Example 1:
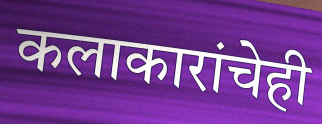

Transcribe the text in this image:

कलाकारांचेही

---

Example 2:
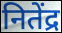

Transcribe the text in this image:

नितेंद्र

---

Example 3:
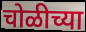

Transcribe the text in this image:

चोळीच्या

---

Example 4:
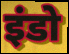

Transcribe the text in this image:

इंडो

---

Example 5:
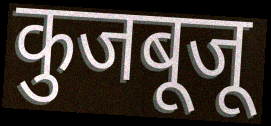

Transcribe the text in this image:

कुजबूजू